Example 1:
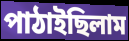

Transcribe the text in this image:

পাঠাইছিলাম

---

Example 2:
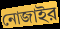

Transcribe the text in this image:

নোজাইর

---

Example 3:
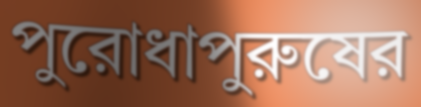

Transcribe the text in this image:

পুরোধাপুরুষের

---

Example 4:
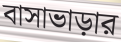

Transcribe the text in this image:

বাসাভাড়ার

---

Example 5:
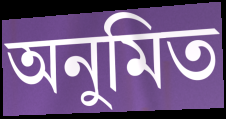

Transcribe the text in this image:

অনুমিত